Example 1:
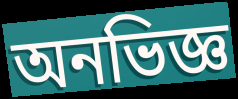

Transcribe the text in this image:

অনভিজ্ঞ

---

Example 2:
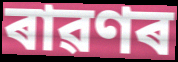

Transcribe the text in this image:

ৰাৱণৰ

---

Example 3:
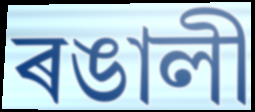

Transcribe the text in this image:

ৰঙালী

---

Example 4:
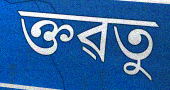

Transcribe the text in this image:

ক্তৱতু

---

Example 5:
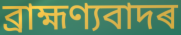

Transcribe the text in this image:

ব্ৰাহ্মণ্যবাদৰ